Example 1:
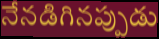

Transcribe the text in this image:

నేనడిగినప్పుడు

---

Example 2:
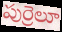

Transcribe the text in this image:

పుర్రెలూ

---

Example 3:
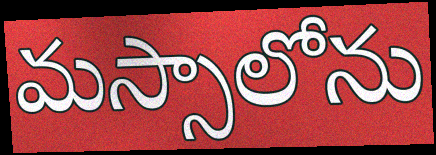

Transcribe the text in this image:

మస్సాలోను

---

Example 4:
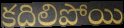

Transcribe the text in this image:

కదిలిపోయి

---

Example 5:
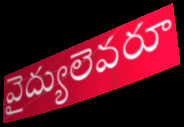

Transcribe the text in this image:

వైద్యులెవరూ